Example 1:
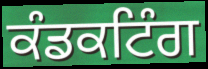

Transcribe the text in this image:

ਕੰਡਕਟਿੰਗ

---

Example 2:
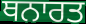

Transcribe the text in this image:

ਥਨਾਰਤ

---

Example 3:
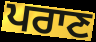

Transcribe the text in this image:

ਪਰਾਣ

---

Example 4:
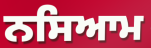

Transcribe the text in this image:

ਨਸਿਆਮ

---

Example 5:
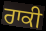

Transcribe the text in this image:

ਰਾਕੀ